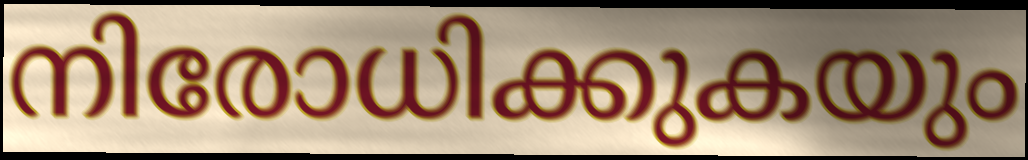
നിരോധിക്കുകയും